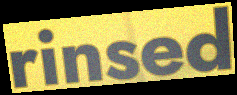
rinsed